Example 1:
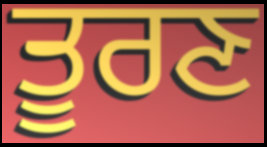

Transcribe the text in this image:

ਤੂਰਣ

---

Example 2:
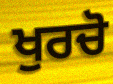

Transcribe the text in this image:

ਖੁਰਚੋ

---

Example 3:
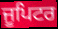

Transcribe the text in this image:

ਜੂਪਿਟਰ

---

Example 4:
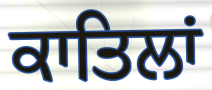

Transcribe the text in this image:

ਕਾਤਿਲਾਂ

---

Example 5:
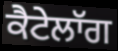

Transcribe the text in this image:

ਕੈਟੇਲਾੱਗ